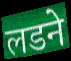
लडने